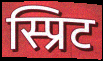
स्प्रिट